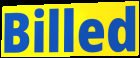
Billed